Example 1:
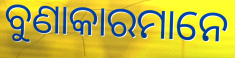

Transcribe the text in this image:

ବୁଣାକାରମାନେ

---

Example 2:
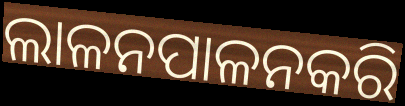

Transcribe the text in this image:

ଲାଳନପାଳନକରି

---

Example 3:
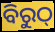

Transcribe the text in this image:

ବିରୁଠ୍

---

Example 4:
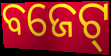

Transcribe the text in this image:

ବଜେଟ୍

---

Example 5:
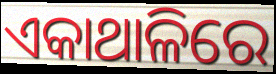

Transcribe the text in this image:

ଏକାଥାଳିରେ